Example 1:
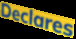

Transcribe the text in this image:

Declares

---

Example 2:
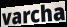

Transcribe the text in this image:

varcha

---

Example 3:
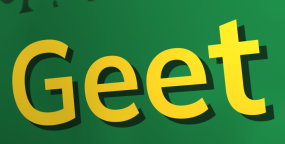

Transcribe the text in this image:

Geet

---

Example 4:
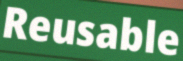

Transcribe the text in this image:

Reusable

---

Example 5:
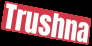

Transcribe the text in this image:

Trushna